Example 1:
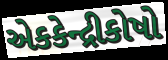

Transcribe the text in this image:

એકકેન્દ્રીકોષો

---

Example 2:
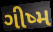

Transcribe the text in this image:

ગીષ્મ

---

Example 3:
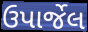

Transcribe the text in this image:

ઉપાર્જેલ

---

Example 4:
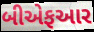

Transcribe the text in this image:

બીએફઆર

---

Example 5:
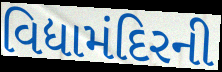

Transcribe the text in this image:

વિદ્યામંદિરની